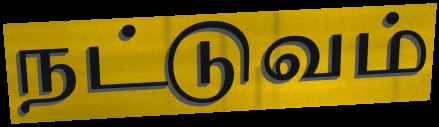
நட்டுவம்